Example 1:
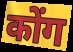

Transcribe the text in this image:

कोंग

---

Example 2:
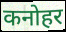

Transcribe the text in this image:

कनोहर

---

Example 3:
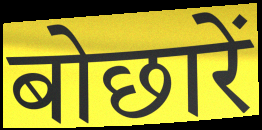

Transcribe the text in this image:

बोछारें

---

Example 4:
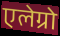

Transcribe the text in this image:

एलेग्रो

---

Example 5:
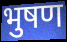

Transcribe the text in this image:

भुषण